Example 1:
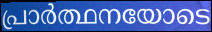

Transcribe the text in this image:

പ്രാർത്ഥനയോടെ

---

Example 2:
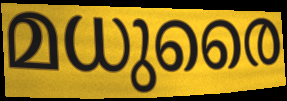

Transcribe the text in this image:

മധുരൈ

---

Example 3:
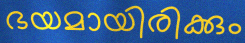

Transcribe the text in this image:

ഭയമായിരിക്കും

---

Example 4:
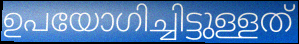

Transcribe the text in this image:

ഉപയോഗിച്ചിട്ടുള്ളത്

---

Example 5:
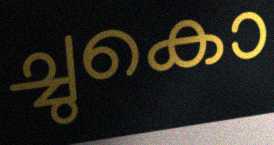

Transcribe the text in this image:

ച്ചുകൊ